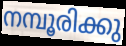
നമ്പൂരിക്കു